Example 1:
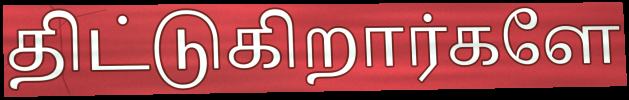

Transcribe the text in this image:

திட்டுகிறார்களே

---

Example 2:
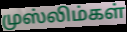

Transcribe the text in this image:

முஸ்லிம்கள்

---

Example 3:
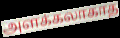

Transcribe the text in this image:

அளக்கலாகாத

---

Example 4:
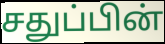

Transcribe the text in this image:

சதுப்பின்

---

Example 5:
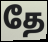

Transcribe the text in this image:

தே